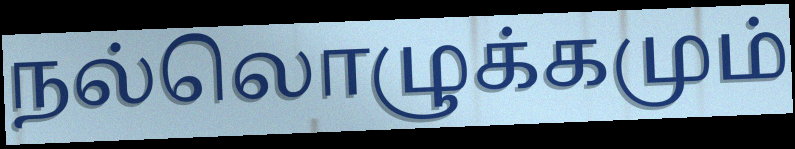
நல்லொழுக்கமும்